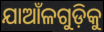
ଯାଆଁଳଗୁଡ଼ିକୁ